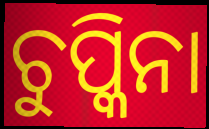
ଚୁପ୍କିନା